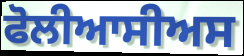
ਫੋਲੀਆਸੀਅਸ